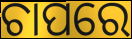
ଚାପରେ